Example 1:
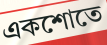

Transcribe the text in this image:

একশোতে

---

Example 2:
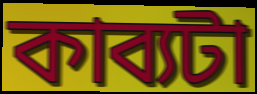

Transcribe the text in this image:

কাব্যটা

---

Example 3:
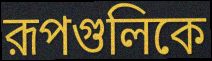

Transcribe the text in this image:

রূপগুলিকে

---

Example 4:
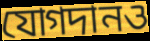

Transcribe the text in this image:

যোগদানও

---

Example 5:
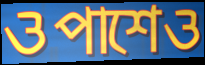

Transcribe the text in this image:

ওপাশেও